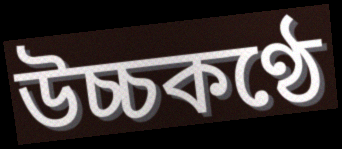
উচ্চকণ্ঠে